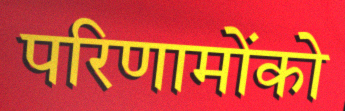
परिणामोंको